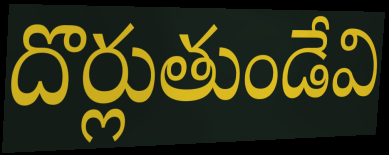
దొర్లుతుండేవి